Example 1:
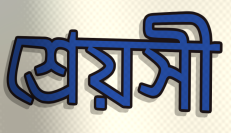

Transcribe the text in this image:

শ্রেয়সী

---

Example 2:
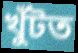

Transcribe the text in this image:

খুঁটত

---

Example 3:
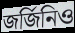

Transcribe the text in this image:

জর্জিনিও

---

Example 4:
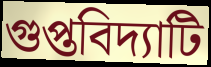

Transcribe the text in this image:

গুপ্তবিদ্যাটি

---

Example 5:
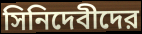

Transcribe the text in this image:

সিনিদেবীদের